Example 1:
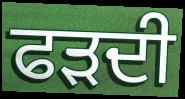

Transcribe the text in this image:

ਫੜਦੀ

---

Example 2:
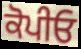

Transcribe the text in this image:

ਕੋਪੀਓ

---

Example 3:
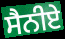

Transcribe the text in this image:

ਸੈਨੀਏ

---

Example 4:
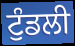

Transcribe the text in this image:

ਟੁੰਡਲੀ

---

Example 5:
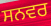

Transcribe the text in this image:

ਸਨਵਰ